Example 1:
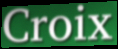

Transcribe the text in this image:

Croix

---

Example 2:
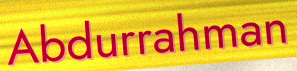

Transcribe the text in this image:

Abdurrahman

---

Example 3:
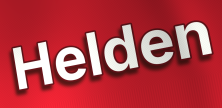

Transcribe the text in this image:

Helden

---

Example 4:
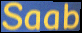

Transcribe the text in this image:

Saab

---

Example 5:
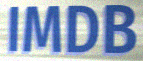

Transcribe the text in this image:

IMDB